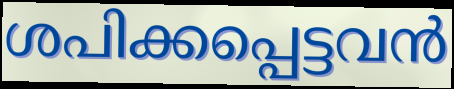
ശപിക്കപ്പെട്ടവൻ